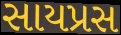
સાયપ્રસ